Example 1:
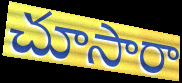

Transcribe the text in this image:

చూసారా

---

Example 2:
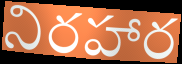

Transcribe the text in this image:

నిరహార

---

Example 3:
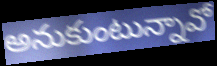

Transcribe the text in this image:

అనుకుంటున్నావో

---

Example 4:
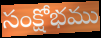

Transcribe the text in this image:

సంక్షోభము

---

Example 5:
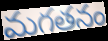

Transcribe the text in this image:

మగతనం